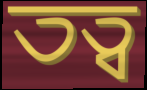
তত্ব